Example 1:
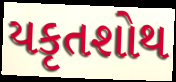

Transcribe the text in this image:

યકૃતશોથ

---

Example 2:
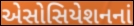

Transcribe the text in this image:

એસોસિયેશનનાં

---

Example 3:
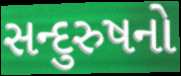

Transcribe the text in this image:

સન્દુરુષનો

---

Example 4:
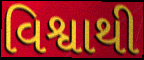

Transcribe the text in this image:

વિશ્વાથી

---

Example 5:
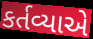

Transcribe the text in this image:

કર્તવ્યાએ